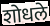
शोधले